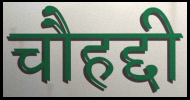
चौहद्दी